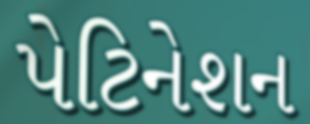
પેટિનેશન